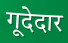
गूदेदार